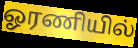
ஓரணியில்